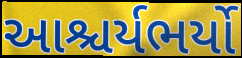
આશ્ચર્યભર્યો